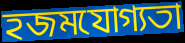
হজমযোগ্যতা